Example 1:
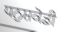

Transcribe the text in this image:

ਧਨੁਸ਼ਕੋਡੀ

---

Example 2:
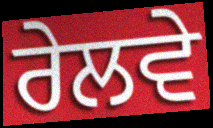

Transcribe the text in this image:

ਰੇਲਵੇ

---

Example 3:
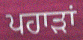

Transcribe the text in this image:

ਪਹਾੜਾਂ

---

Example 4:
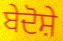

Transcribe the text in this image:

ਬੇਦੋਸ਼ੇ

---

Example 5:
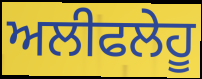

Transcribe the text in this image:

ਅਲੀਫਲੇਹੂ